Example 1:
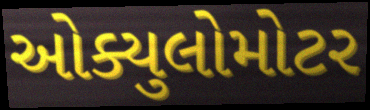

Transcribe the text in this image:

ઓક્યુલોમોટર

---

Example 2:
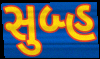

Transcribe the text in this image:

સુબ્હ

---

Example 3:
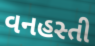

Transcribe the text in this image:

વનહસ્તી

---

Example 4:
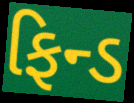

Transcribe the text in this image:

ફિન્ડ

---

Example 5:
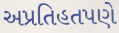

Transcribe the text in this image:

અપ્રતિહતપણે